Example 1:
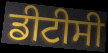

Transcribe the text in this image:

ਡੀਟੀਸੀ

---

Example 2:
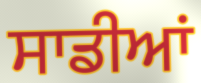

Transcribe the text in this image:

ਸਾਡੀਆਂ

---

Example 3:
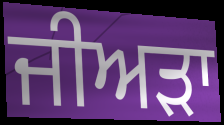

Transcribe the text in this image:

ਜੀਅੜਾ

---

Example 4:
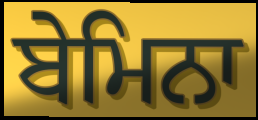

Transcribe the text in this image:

ਬੇਮਿਨਾ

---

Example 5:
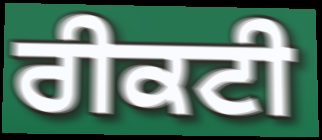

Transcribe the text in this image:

ਰੀਕਟੀ